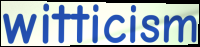
witticism